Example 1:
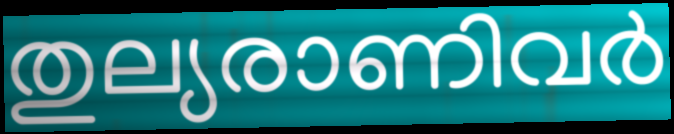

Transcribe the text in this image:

തുല്യരാണിവർ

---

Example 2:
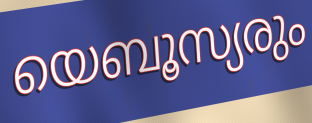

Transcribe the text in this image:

യെബൂസ്യരും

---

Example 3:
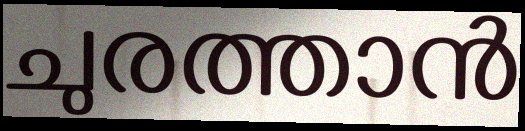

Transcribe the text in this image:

ചുരത്താൻ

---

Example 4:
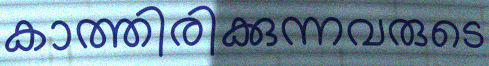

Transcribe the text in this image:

കാത്തിരിക്കുന്നവരുടെ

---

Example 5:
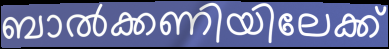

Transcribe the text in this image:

ബാൽക്കണിയിലേക്ക്